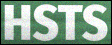
HSTS